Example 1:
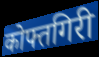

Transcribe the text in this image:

कोफ्तगिरी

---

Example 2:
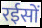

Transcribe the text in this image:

रईसों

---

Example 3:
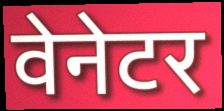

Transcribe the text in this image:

वेनेटर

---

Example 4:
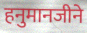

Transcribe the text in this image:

हनुमानजीने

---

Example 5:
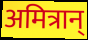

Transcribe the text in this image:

अमित्रान्